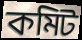
কমিট